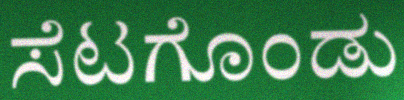
ಸೆಟಗೊಂಡು